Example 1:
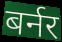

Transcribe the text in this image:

बर्नर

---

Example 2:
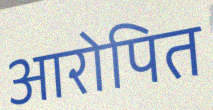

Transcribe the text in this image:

आरोपित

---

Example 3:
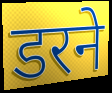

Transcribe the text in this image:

डरने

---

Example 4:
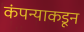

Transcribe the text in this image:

कंपन्याकडून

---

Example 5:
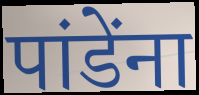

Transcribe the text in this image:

पांडेंना